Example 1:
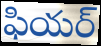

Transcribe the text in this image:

ఫియర్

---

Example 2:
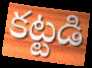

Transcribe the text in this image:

కట్టడి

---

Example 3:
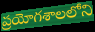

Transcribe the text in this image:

ప్రయోగశాలలోని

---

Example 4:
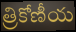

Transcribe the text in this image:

త్రికోణీయ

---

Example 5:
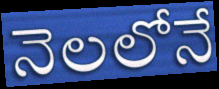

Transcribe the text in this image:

నెలలోనే